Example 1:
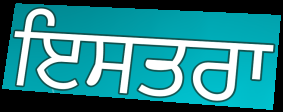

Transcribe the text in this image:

ਇਸਤਰਾ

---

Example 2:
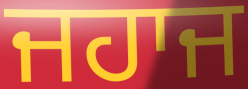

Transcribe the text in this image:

ਜਹਾਜ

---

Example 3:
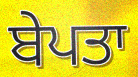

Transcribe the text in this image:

ਬੇਪਤਾ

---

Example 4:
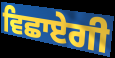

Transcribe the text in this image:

ਵਿਛਾਏਗੀ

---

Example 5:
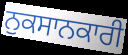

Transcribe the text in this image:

ਨੁਕਸਾਨਕਾਰੀ